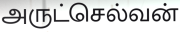
அருட்செல்வன்